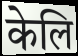
केलि